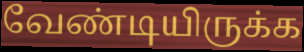
வேண்டியிருக்க